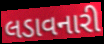
લડાવનારી